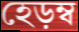
হেড়ম্ব